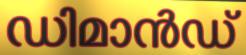
ഡിമാൻഡ്